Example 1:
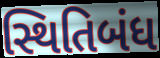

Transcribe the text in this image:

સ્થિતિબંધ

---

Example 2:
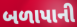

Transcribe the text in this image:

બળાપાની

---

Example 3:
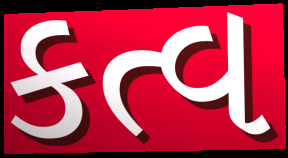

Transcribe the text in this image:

કત્વ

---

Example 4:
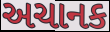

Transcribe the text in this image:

અચાનક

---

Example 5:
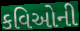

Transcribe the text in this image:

કવિઓની